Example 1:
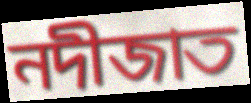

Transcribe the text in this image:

নদীজাত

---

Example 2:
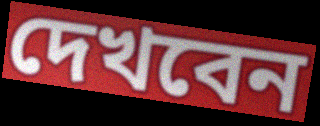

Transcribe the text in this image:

দেখবেন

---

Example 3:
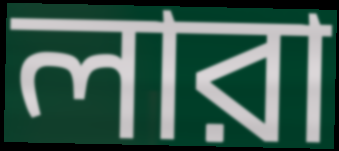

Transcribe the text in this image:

লারা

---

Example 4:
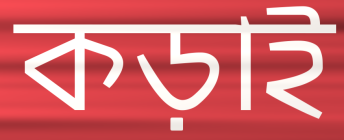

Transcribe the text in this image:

কড়াই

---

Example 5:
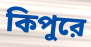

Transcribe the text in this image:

কিপুরে